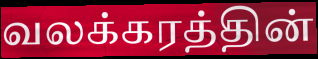
வலக்கரத்தின்